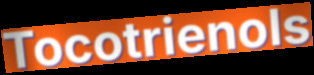
Tocotrienols